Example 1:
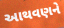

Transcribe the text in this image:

આથવણને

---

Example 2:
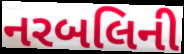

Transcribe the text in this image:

નરબલિની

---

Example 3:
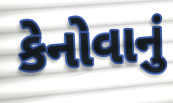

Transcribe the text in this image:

કેનોવાનું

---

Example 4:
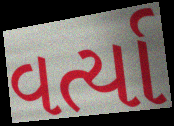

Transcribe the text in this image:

વર્ત્યા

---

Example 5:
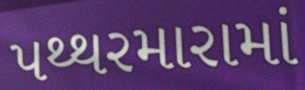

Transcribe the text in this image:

પથ્થરમારામાં